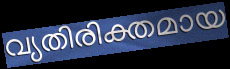
വ്യതിരിക്തമായ